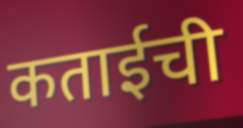
कताईची